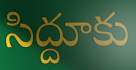
సిద్దూకు